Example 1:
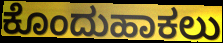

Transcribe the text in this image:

ಕೊಂದುಹಾಕಲು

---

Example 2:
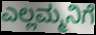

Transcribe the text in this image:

ಎಲ್ಲಮ್ಮನಿಗೆ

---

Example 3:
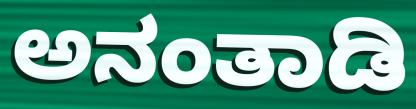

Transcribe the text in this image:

ಅನಂತಾಡಿ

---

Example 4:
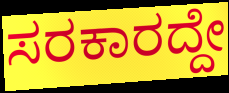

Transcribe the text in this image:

ಸರಕಾರದ್ದೇ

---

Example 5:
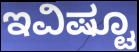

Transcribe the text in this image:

ಇವಿಷ್ಟೂ